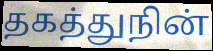
தகத்துநின்